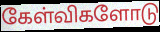
கேள்விகளோடு